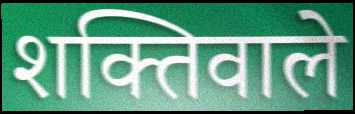
शक्तिवाले